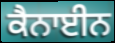
ਕੈਨਾਈਨ